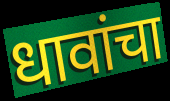
धावांचा